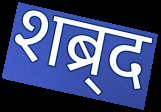
शब्र्द